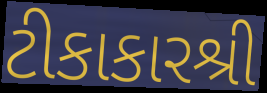
ટીકાકારશ્રી